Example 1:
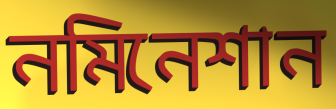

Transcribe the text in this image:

নমিনেশান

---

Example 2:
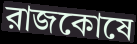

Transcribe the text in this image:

রাজকোষে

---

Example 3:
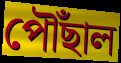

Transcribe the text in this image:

পৌঁছাল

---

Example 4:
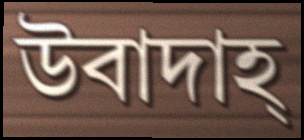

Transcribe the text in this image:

উবাদাহ্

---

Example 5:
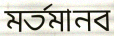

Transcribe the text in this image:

মর্তমানব